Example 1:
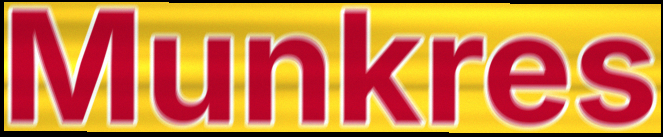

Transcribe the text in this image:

Munkres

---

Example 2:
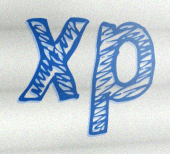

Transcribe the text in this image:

xp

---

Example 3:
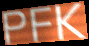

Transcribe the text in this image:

PFK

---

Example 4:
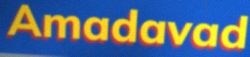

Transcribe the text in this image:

Amadavad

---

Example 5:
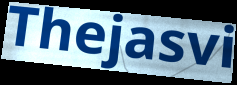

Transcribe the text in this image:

Thejasvi